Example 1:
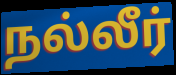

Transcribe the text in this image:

நல்லீர்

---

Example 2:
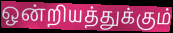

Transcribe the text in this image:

ஒன்றியத்துக்கும்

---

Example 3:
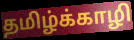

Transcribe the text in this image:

தமிழ்க்காழி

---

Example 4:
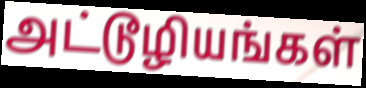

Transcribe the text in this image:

அட்டூழியங்கள்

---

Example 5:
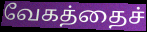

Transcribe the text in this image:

வேகத்தைச்